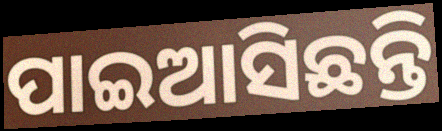
ପାଇଆସିଛନ୍ତି